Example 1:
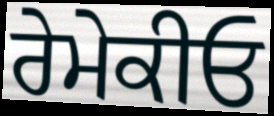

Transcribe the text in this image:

ਰੇਮੇਕੀਓ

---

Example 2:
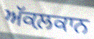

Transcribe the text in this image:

ਅੱਕਲ਼ਕਾਨ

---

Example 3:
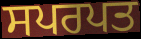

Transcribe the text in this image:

ਸਪਰਪਤ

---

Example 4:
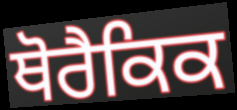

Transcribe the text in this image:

ਥੋਰੈਕਿਕ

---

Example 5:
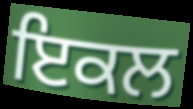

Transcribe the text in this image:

ਇਕਲ